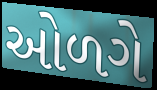
ઓળગે